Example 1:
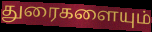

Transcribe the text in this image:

துரைகளையும்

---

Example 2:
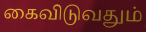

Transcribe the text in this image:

கைவிடுவதும்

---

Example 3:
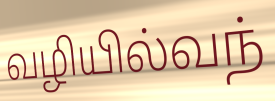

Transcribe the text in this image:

வழியில்வந்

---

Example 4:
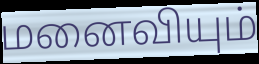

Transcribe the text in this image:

மனைவியும்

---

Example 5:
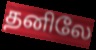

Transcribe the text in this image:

தனிலே